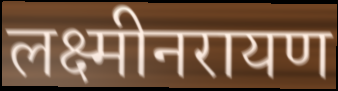
लक्ष्मीनरायण